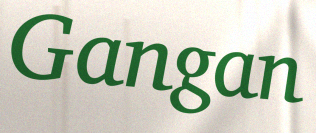
Gangan